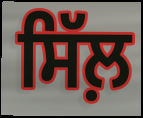
ਸਿੱਲ਼